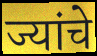
ज्यांचे